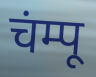
चंम्पू